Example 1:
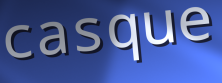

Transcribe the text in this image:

casque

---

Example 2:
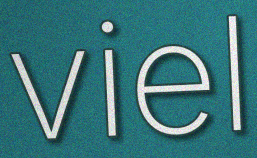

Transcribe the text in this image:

viel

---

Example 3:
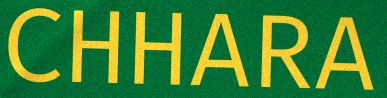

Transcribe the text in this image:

CHHARA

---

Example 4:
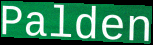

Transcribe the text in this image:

Palden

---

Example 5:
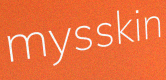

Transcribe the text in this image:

mysskin